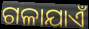
ଗଳାଯାଏଁ